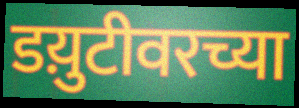
डय़ुटीवरच्या